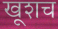
खूशच